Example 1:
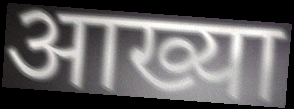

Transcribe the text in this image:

आख्या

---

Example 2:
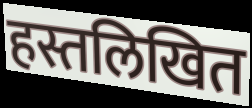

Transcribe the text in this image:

हस्तलिखित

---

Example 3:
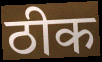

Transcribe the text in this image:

ठीक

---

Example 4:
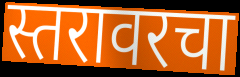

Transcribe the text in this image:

स्तरावरचा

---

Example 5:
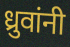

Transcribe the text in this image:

ध्रुवांनी